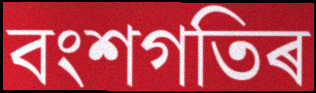
বংশগতিৰ